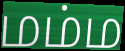
மம்ம